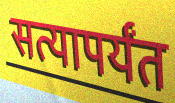
सत्यापर्यंत